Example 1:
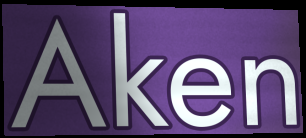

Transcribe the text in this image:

Aken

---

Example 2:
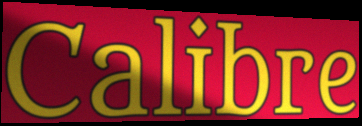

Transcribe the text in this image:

Calibre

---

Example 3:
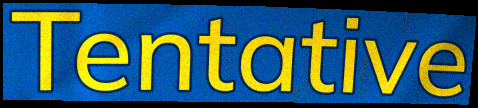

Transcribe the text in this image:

Tentative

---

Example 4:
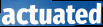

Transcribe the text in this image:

actuated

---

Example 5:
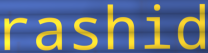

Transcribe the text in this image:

rashid